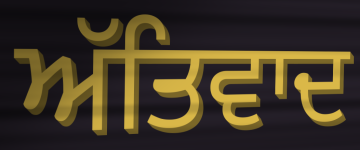
ਅੱਤਿਵਾਦ